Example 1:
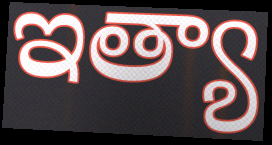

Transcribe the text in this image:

ఇత్యా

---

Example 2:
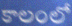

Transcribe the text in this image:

కాలంలో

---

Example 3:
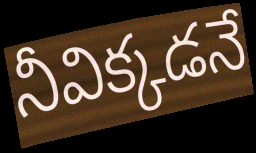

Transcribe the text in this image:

నీవిక్కడనే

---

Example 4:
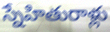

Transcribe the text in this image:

స్నేహితురాళ్లు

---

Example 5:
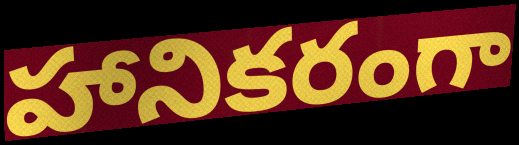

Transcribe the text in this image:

హానికరంగా